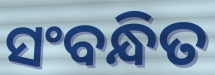
ସଂବନ୍ଧିତ